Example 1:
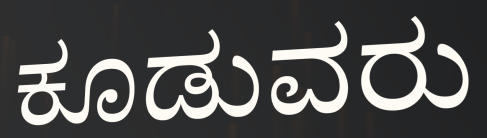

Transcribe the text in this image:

ಕೂಡುವರು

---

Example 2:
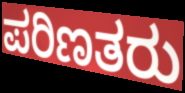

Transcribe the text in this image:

ಪರಿಣತರು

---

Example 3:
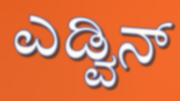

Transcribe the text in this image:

ಎಡ್ವಿನ್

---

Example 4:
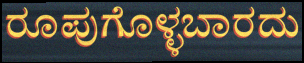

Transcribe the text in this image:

ರೂಪುಗೊಳ್ಳಬಾರದು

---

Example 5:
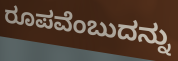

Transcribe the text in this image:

ರೂಪವೆಂಬುದನ್ನು